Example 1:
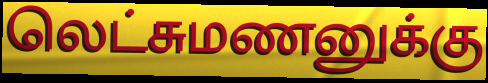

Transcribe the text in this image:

லெட்சுமணனுக்கு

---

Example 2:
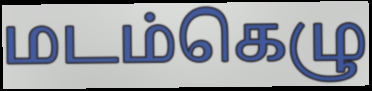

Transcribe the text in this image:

மடம்கெழு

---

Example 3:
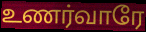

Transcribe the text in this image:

உணர்வாரே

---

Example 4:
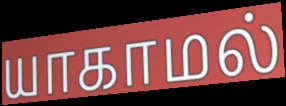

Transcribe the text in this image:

யாகாமல்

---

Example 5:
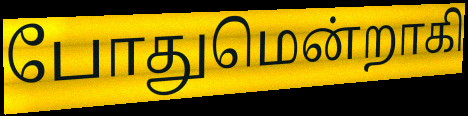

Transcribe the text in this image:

போதுமென்றாகி